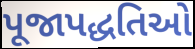
પૂજાપદ્ધતિઓ